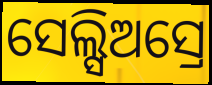
ସେଲ୍ସିଅସ୍ରେ